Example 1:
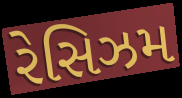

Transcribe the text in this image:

રેસિઝમ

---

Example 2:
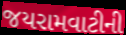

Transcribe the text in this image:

જયરામવાટીની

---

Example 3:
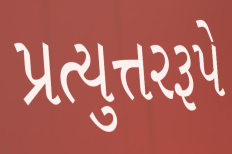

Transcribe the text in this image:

પ્રત્યુત્તરરૂપે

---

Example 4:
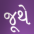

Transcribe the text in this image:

જૂથે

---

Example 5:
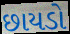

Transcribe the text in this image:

છાયડો